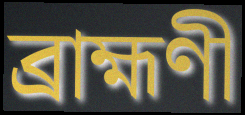
ব্রাহ্মণী